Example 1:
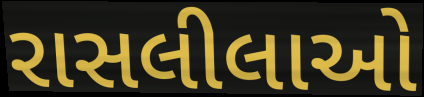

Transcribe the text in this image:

રાસલીલાઓ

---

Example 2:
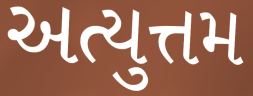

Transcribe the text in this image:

અત્યુત્તમ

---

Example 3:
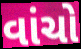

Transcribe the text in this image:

વાંચો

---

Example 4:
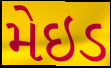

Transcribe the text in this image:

મેઇડ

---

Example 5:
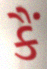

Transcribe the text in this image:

કૈં